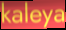
kaleya